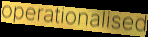
operationalised